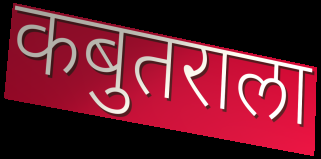
कबुतराला